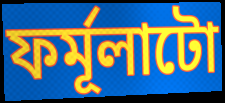
ফৰ্মূলাটো